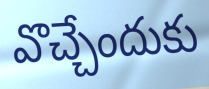
వొచ్చేందుకు